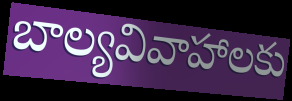
బాల్యవివాహాలకు